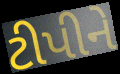
ટીપીને